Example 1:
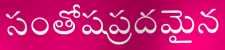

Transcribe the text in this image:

సంతోషప్రదమైన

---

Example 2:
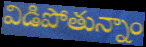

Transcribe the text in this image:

విడిపోతున్నాం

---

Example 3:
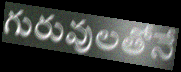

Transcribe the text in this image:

గురువులతోనే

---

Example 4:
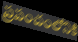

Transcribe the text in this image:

ప్రపంచంలోనికి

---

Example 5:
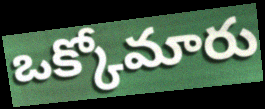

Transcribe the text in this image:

ఒక్కోమారు